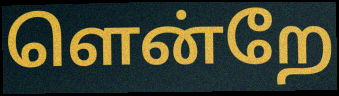
ளென்றே